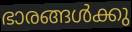
ഭാരങ്ങൾക്കു